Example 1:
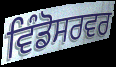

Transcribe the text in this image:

ਵਿੰਡੋਸਰਵਰ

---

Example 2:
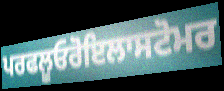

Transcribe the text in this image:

ਪਰਫਲੂਓਰੋਇਲਾਸਟੋਮਰ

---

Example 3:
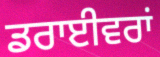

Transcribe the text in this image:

ਡਰਾਈਵਰਾਂ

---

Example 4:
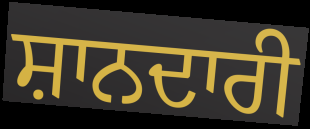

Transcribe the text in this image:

ਸ਼ਾਨਦਾਰੀ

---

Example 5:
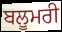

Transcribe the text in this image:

ਬਲੂਮਰੀ